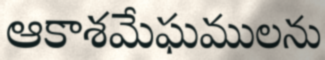
ఆకాశమేఘములను